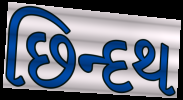
છિન્દથ